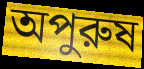
অপুরুষ